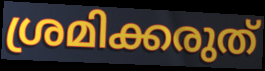
ശ്രമിക്കരുത്